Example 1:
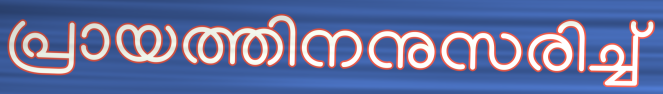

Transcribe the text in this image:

പ്രായത്തിനനുസരിച്ച്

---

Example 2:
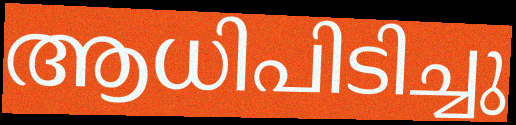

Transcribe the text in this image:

ആധിപിടിച്ചു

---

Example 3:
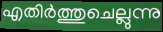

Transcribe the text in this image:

എതിർത്തുചെല്ലുന്നു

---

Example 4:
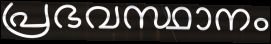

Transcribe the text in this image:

പ്രഭവസ്ഥാനം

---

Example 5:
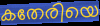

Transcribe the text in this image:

കതേരിയെ